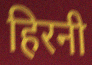
हिरनी